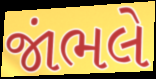
જાંભલે